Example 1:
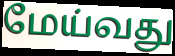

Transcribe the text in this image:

மேய்வது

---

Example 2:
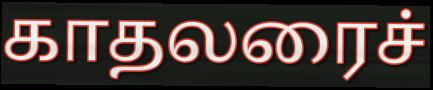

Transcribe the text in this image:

காதலரைச்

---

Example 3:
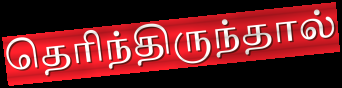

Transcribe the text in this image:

தெரிந்திருந்தால்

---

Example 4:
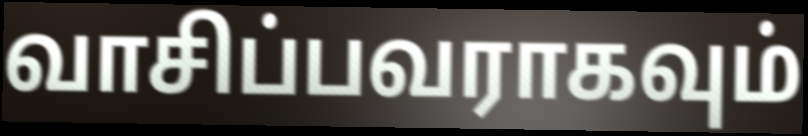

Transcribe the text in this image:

வாசிப்பவராகவும்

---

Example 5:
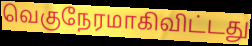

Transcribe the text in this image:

வெகுநேரமாகிவிட்டது